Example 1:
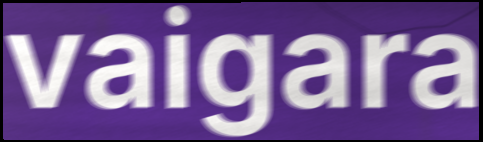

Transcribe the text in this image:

vaigara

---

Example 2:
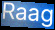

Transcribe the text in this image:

Raag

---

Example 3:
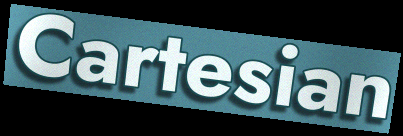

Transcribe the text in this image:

Cartesian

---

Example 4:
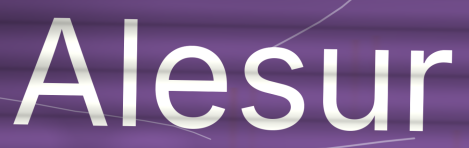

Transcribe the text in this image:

Alesur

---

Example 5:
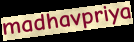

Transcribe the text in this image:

madhavpriya